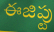
ఈజిప్టు